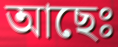
আছেঃ